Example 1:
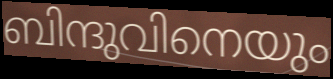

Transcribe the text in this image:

ബിന്ദുവിനെയും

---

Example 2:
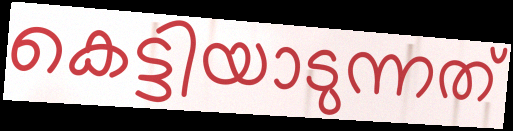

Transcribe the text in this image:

കെട്ടിയാടുന്നത്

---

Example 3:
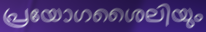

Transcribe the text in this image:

പ്രയോഗശൈലിയും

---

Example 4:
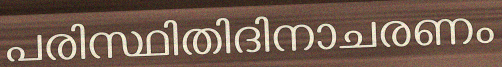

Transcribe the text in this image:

പരിസ്ഥിതിദിനാചരണം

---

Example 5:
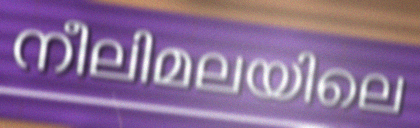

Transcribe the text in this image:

നീലിമലയിലെ